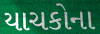
યાચકોના